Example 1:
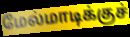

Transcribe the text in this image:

மேல்மாடிக்குச்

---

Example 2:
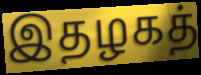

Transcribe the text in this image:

இதழகத்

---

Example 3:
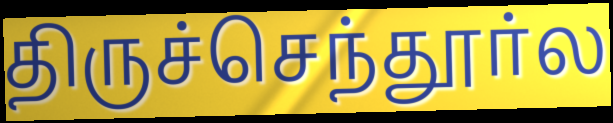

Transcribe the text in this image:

திருச்செந்தூர்ல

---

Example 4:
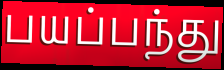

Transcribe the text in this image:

பயப்பந்து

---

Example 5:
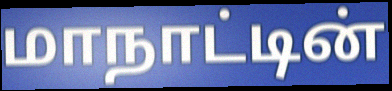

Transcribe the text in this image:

மாநாட்டின்